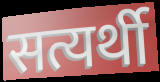
सत्यर्थी